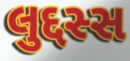
લુદ્દસ્સ